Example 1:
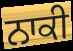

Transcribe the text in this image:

ਨਾਕੀ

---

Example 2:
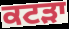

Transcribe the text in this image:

ਕਟੜਾ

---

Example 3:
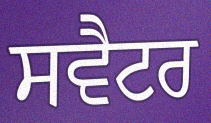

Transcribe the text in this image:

ਸਵੈਟਰ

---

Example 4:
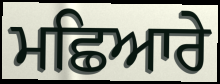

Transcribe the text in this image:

ਮਛਿਆਰੇ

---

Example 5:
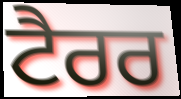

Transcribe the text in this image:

ਟੈਰਰ